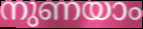
നുണയാം